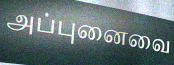
அப்புனைவை